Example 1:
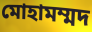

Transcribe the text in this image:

মোহামম্মদ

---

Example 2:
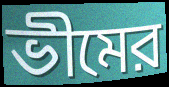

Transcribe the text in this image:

ভীমের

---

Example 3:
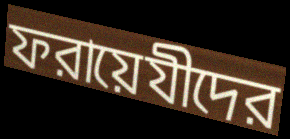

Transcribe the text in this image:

ফরায়েযীদের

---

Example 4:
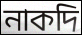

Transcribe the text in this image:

নাকদি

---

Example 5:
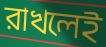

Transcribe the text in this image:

রাখলেই